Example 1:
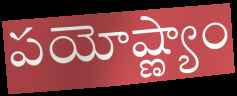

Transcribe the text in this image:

పయోష్ణ్యాం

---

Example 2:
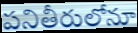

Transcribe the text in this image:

పనితీరులోనూ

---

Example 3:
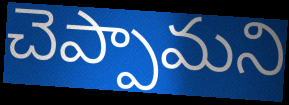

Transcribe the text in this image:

చెప్పామని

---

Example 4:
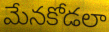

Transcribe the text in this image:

మేనకోడలా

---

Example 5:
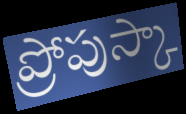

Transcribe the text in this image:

ప్రోపుస్కా